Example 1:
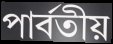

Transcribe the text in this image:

পার্বতীয়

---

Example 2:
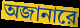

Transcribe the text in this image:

অজানারে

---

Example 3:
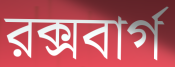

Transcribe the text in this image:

রক্সবার্গ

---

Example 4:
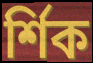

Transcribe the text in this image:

র্শিক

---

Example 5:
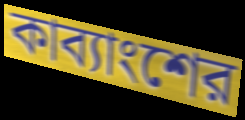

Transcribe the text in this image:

কাব্যাংশের